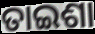
ତାଇଶା